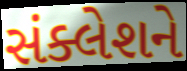
સંક્લેશને